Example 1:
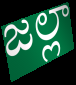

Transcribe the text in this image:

జల్లా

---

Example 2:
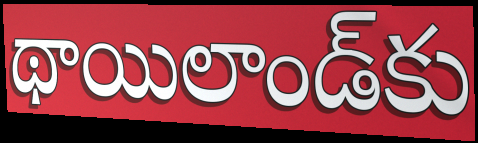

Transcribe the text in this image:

థాయిలాండ్‌కు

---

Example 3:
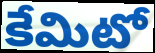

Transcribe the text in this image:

కేమిటో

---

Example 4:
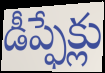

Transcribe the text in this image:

డీప్ఫేక్లు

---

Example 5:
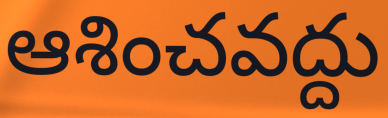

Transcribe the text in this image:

ఆశించవద్దు